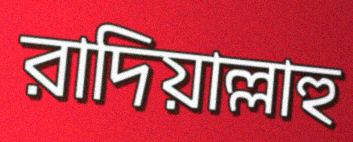
রাদিয়াল্লাহু